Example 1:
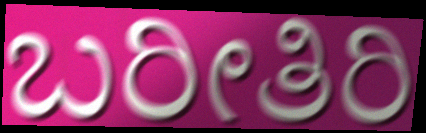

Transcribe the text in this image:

ಬರೀತಿರಿ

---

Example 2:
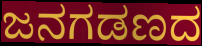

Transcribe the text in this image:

ಜನಗಡಣದ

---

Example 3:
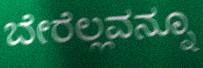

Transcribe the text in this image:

ಬೇರೆಲ್ಲವನ್ನೂ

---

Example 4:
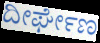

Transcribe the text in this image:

ದೀರ್ಘೇಣ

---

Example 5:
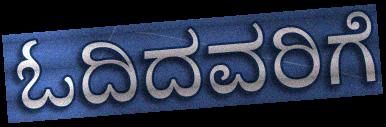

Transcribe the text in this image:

ಓದಿದವರಿಗೆ